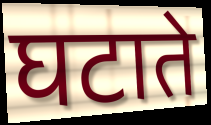
घटाते